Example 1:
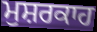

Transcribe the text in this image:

ਮੁਸ਼ਰਕਾਹ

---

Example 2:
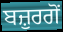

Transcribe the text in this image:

ਬਜ਼ੁਰਗੋਂ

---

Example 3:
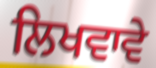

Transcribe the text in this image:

ਲਿਖਵਾਵੇ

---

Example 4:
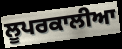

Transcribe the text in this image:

ਲੂਪਰਕਾਲੀਆ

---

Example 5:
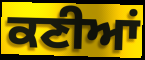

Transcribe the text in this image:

ਕਣੀਆਂ